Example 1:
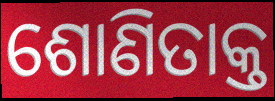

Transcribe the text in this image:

ଶୋଣିତାକ୍ତ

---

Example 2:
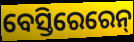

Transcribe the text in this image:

ବେସ୍ତିରେରେନ୍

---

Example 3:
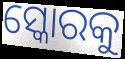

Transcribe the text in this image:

ସ୍କୋରକୁ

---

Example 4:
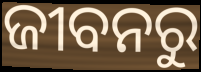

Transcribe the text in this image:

ଜୀବନରୁ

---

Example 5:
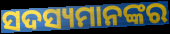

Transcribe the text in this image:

ସଦସ୍ୟମାନଙ୍କର